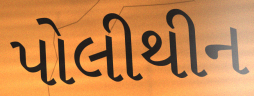
પોલીથીન